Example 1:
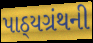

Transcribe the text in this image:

પાઠ્યગ્રંથની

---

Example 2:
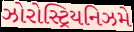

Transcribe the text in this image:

ઝોરોસ્ટ્રિયનિઝમે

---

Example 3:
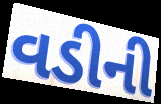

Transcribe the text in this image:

વડીની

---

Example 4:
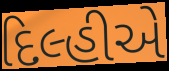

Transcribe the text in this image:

દિલ્હીએ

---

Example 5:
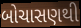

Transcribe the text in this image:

બોચાસણથી